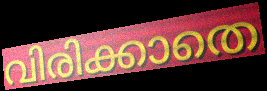
വിരിക്കാതെ